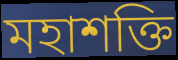
মহাশক্তি